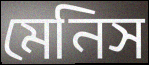
মেনিস